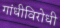
गांधीविरोधी